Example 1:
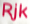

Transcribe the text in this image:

Rjk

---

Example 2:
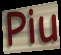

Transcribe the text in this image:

Piu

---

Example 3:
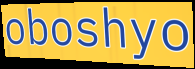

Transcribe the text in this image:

oboshyo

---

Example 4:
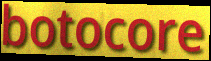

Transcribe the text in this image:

botocore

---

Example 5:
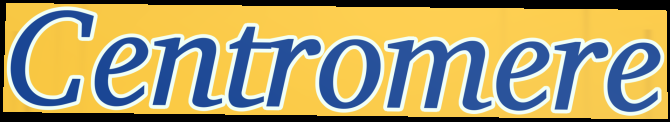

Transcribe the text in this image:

Centromere